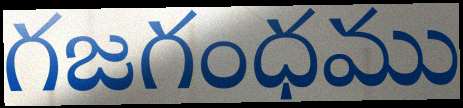
గజగంధము